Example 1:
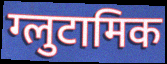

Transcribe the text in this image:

ग्लुटामिक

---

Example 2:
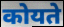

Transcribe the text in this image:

कोयते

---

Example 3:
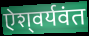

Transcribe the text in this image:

ऐश्वर्यवंत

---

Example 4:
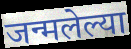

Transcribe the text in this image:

जन्मलेल्या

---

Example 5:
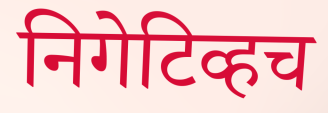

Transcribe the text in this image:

निगेटिव्हच